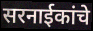
सरनाईकांचे